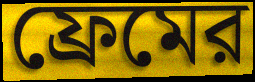
ফ্রেমের